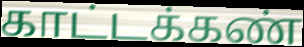
காட்டக்கண்